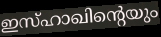
ഇസ്ഹാഖിന്റെയും